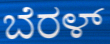
ಬೆರಳ್